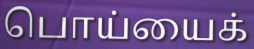
பொய்யைக்